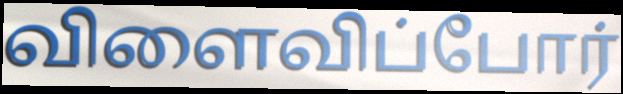
விளைவிப்போர்